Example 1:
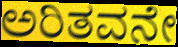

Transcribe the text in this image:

ಅರಿತವನೇ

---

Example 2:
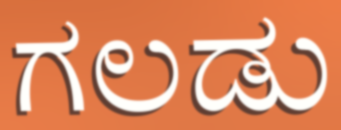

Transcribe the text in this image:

ಗಲಡು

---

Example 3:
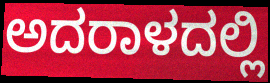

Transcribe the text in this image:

ಅದರಾಳದಲ್ಲಿ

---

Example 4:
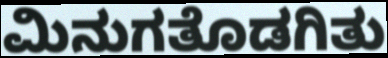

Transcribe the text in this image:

ಮಿನುಗತೊಡಗಿತು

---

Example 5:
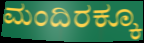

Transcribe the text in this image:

ಮಂದಿರಕ್ಕೂ